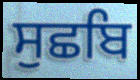
ਸੁਛਬਿ